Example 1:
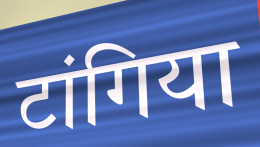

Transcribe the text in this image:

टांगिया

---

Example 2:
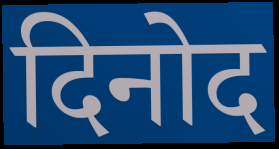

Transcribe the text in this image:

दिनोद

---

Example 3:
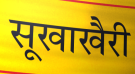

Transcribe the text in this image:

सूखाखैरी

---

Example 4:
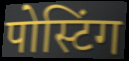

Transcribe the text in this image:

पोस्टिंग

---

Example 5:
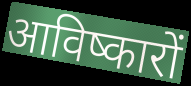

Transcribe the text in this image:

आविष्कारों